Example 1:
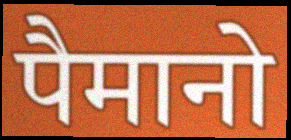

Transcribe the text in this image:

पैमानो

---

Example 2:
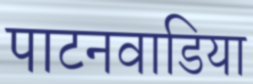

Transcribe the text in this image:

पाटनवाडिया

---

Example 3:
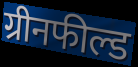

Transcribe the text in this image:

ग्रीनफील्‍ड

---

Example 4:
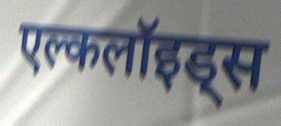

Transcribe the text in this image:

एल्कलॉइड्स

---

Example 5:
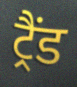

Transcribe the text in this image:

ट्रैंड